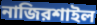
নাজিরশাইল